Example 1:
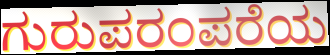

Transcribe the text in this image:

ಗುರುಪರಂಪರೆಯ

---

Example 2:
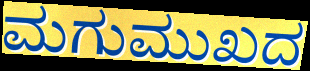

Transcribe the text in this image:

ಮಗುಮುಖದ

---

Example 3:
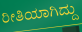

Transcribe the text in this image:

ರೀತಿಯಾಗಿದ್ದು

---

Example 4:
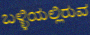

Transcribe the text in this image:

ಬಳ್ಳಿಯಲ್ಲಿರುವ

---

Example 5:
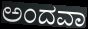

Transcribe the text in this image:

ಅಂದವಾ